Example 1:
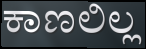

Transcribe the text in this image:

ಕಾಣಲಿಲ್ಲ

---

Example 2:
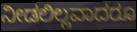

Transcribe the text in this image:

ನೀಡಲಿಲ್ಲವಾದರೂ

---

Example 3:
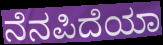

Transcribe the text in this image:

ನೆನಪಿದೆಯಾ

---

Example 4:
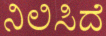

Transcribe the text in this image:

ನಿಲಿಸಿದೆ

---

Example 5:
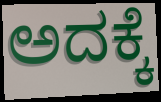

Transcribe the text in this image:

ಅದಕ್ಕೆ